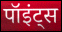
पॉइंट्स